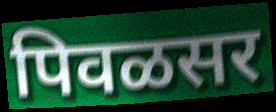
पिवळसर